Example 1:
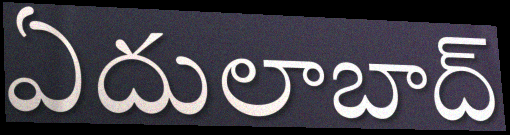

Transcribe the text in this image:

ఏదులాబాద్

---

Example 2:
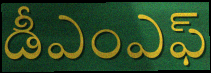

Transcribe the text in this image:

డీఎంఎఫ్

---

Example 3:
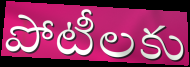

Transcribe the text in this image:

పోటీలకు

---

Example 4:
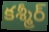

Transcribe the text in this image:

కశ్మీర్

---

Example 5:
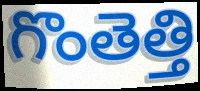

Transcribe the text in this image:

గొంతెత్తి